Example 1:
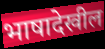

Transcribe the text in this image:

भाषादेखील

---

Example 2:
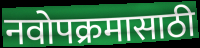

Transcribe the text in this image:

नवोपक्रमासाठी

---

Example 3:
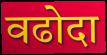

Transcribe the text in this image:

वढोदा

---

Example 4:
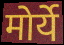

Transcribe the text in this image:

मोर्ये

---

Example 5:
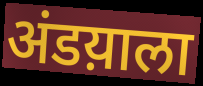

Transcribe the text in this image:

अंडय़ाला